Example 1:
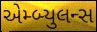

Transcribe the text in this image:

એમ્બ્યુલન્સ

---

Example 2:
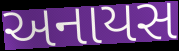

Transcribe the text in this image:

અનાયસ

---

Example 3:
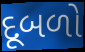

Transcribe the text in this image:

દૂબળો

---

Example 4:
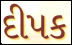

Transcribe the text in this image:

દીપક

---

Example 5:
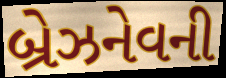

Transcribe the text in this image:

બ્રેઝનેવની